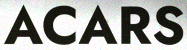
ACARS